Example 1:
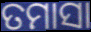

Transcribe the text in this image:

ତମାସା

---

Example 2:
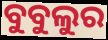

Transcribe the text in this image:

ବୁବୁଲୁର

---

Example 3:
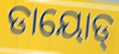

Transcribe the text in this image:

ଡାୟୋଡ୍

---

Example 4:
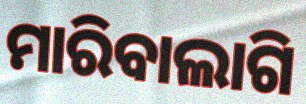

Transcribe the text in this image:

ମାରିବାଲାଗି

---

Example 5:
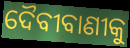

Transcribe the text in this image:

ଦୈବୀବାଣୀକୁ